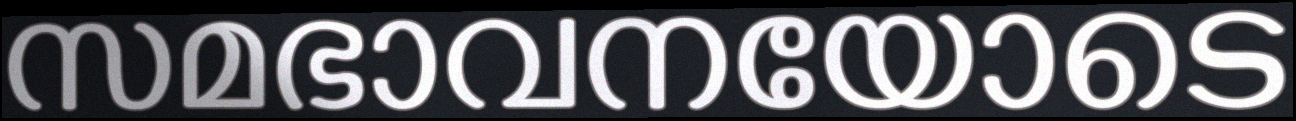
സമഭാവനയോടെ